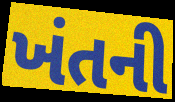
ખંતની